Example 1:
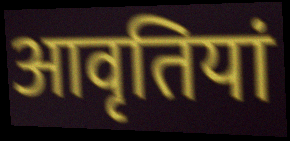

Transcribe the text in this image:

आवृतियां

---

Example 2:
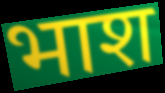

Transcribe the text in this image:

भाश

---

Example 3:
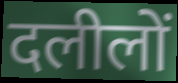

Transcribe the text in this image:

दलीलों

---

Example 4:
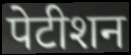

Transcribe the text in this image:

पेटीशन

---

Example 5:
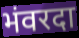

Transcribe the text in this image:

भंवरदा